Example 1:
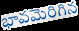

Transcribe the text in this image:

భావమెరిగిన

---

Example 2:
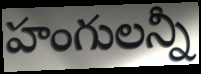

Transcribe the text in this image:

హంగులన్నీ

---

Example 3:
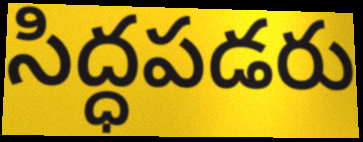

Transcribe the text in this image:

సిద్ధపడరు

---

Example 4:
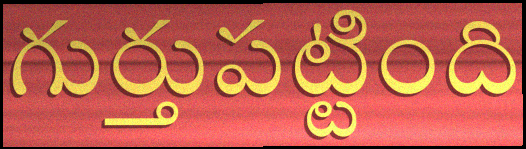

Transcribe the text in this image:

గుర్తుపట్టింది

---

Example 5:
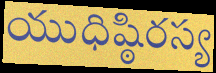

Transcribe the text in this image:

యుధిష్ఠిరస్య